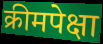
क्रीमपेक्षा